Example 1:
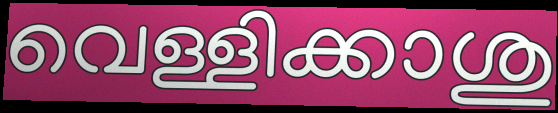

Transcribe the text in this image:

വെള്ളിക്കാശു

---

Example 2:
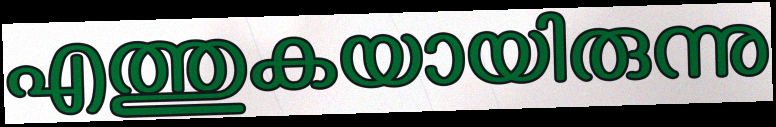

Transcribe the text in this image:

എത്തുകയായിരുന്നു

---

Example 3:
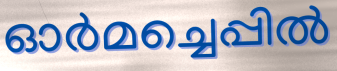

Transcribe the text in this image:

ഓർമച്ചെപ്പിൽ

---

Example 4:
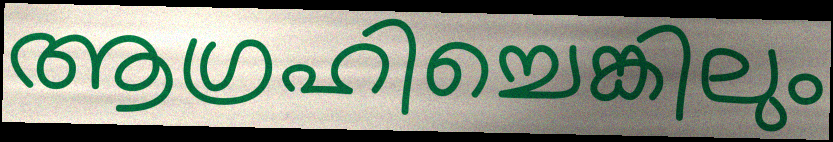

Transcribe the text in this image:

ആഗ്രഹിച്ചെങ്കിലും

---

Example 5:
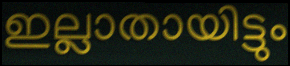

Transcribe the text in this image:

ഇല്ലാതായിട്ടും